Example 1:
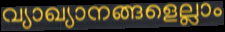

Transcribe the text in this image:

വ്യാഖ്യാനങ്ങളെല്ലാം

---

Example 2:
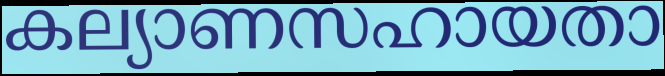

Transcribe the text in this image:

കല്യാണസഹായതാ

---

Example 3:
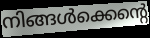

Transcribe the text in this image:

നിങ്ങൾക്കെന്റെ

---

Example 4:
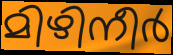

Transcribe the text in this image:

മിഴിനീർ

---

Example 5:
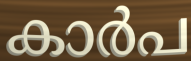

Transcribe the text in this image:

കാർപ